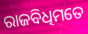
ରାଜବିଧିମତେ